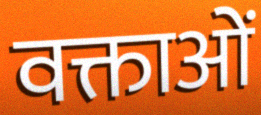
वक्ताओें